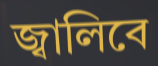
জ্বালিবে